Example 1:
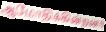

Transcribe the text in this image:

ஆமோதிக்கின்றனர்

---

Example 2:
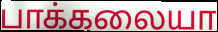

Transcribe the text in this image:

பாக்கலையா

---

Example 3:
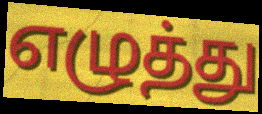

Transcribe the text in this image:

எழுத்து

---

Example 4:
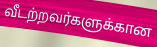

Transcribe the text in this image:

வீடற்றவர்களுக்கான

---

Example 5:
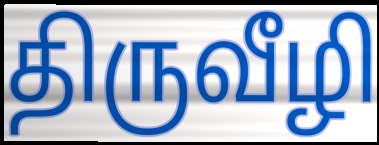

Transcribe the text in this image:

திருவீழி